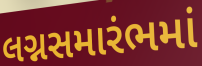
લગ્નસમારંભમાં